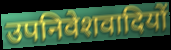
उपनिवेशवादियों